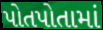
પોતપોતામાં